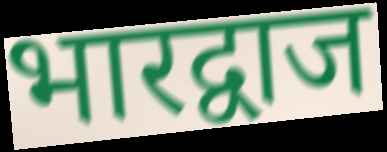
भारद्वाज